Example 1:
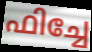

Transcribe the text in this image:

ഫിച്ചേ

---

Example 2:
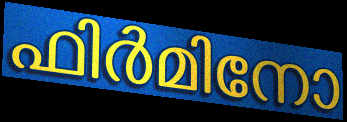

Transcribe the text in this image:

ഫിർമിനോ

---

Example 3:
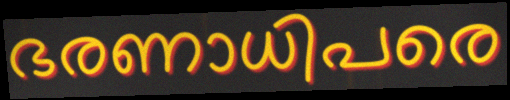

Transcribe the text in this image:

ഭരണാധിപരെ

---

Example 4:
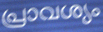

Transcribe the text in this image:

പ്രാവശ്യം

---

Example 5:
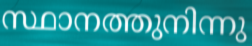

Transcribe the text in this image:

സ്ഥാനത്തുനിന്നു